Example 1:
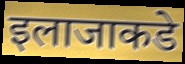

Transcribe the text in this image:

इलाजाकडे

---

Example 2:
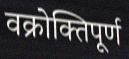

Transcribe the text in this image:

वक्रोक्तिपूर्ण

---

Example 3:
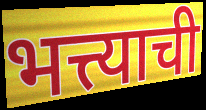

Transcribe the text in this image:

भत्त्याची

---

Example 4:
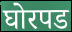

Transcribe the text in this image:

घोरपड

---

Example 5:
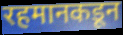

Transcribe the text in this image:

रहमानकडून